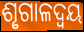
ଶୃଗାଳଦ୍ୱୟ